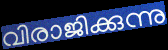
വിരാജിക്കുന്നു